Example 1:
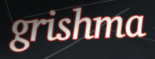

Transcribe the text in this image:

grishma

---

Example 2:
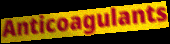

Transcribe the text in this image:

Anticoagulants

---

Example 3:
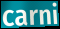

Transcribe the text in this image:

carni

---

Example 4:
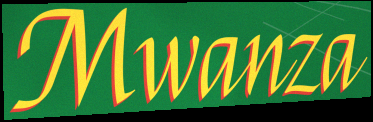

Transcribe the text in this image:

Mwanza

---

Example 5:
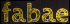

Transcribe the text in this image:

fabae